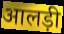
आलड़ी